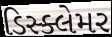
ડિસ્ક્લેમર